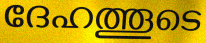
ദേഹത്തൂടെ